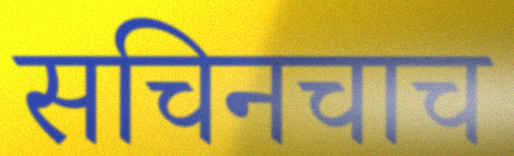
सचिनचाच